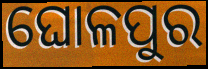
ଘୋଳପୁର